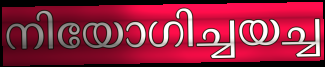
നിയോഗിച്ചയച്ച